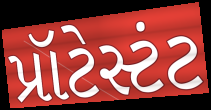
પ્રૉટેસ્ટંટ